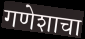
गणेशाचा